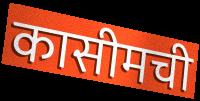
कासीमची